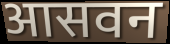
आसवन